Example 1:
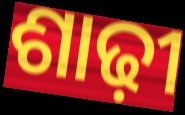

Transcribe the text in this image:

ଶାଢ଼ୀ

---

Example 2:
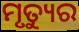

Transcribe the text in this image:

ମୃତ୍ୟୁର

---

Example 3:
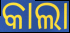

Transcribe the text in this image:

କାଲା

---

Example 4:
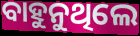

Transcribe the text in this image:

ବାହୁନୁଥିଲେ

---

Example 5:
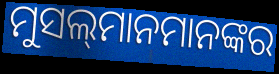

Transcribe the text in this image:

ମୁସଲ୍‌ମାନମାନଙ୍କର